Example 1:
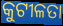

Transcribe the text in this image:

କୁଟୀଳତା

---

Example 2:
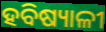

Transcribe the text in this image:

ହବିଷ୍ୟାଳୀ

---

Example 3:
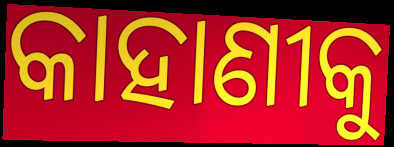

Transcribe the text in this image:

କାହାଣୀକୁ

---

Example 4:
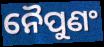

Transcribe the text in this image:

ନୈପୁଣଂ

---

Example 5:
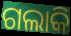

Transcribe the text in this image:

ଗଲାକି